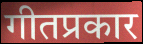
गीतप्रकार